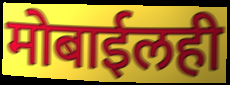
मोबाईलही